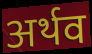
अर्थव